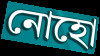
নোহো